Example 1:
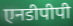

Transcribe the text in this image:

एनडीपीपी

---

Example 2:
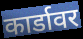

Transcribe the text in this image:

कार्डावर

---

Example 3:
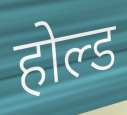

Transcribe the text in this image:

होल्ड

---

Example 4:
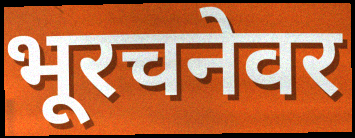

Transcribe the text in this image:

भूरचनेवर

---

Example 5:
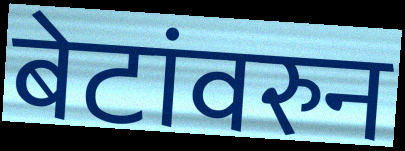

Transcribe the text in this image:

बेटांवरुन